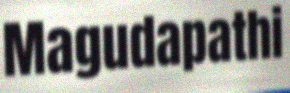
Magudapathi